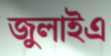
জুলাইএ